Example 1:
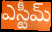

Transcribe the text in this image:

ఎస్టీమ్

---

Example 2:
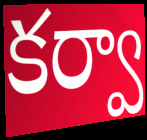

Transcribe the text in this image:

కర్వా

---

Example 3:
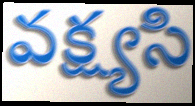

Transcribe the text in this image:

వక్ష్యసి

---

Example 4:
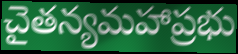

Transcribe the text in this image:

చైతన్యమహాప్రభు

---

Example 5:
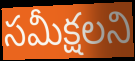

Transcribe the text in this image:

సమీక్షలని